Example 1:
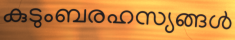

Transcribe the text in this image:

കുടുംബരഹസ്യങ്ങൾ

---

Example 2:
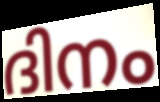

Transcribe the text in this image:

ദിനം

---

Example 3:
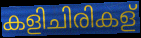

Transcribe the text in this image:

കളിചിരികള്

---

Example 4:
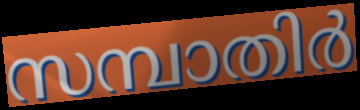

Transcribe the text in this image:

സമ്പാതിർ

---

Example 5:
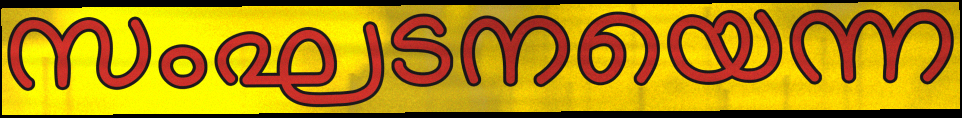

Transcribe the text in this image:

സംഘടനയെന്ന